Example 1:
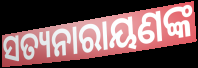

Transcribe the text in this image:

ସତ୍ୟନାରାୟଣଙ୍କ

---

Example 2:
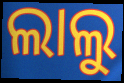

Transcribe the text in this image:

ଲାଲୁ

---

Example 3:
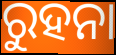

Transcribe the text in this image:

ରୁହନା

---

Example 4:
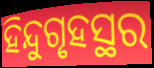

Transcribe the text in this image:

ହିନ୍ଦୁଗୃହସ୍ଥର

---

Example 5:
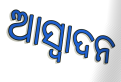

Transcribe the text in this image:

ଆସ୍ୱାଦନ